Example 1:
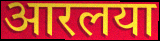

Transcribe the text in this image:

आरलया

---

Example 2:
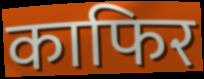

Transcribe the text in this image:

काफिर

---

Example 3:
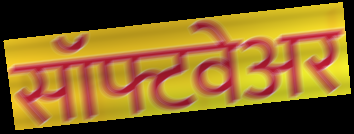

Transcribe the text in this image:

सॉफ्टवेअर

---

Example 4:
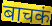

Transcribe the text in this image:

बाचकं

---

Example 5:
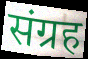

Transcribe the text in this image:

संग्रह